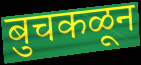
बुचकळून